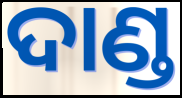
ଦାଣ୍ଡ